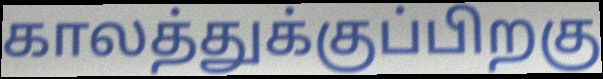
காலத்துக்குப்பிறகு